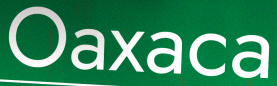
Oaxaca